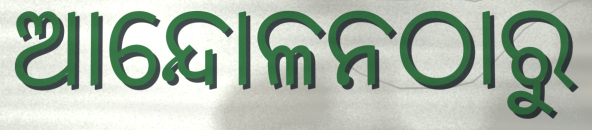
ଆନ୍ଦୋଳନଠାରୁ